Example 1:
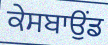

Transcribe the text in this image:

ਕੇਸਬਾਉਂਡ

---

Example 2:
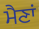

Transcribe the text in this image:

ਮੈਣਾਂ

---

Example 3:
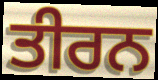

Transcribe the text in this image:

ਤੀਰਨ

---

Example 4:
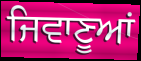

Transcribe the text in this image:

ਜਿਵਾਣੂਆਂ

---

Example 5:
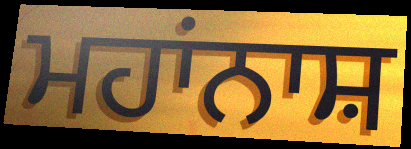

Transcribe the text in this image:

ਮਹਾਂਨਾਸ਼